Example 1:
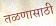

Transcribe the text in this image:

तळणासाठी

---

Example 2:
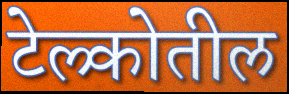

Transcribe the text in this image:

टेल्कोतील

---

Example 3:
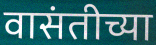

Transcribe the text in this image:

वासंतीच्या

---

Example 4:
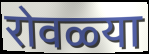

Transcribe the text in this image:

रोवळ्या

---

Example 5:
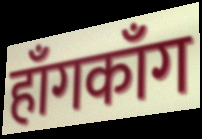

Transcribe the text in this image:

हाँगकाँग